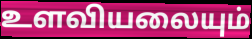
உளவியலையும்